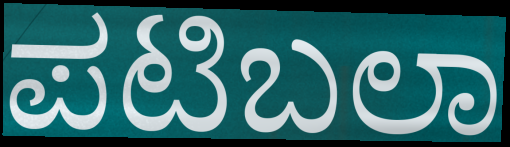
ಪಟಿಬಲಾ